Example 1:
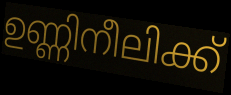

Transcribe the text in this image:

ഉണ്ണിനീലിക്ക്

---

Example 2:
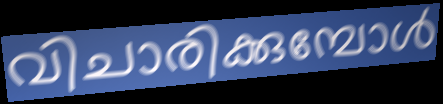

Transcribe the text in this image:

വിചാരിക്കുമ്പോൾ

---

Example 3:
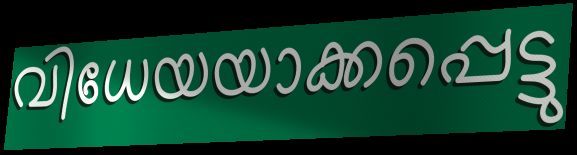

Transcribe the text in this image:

വിധേയയാക്കപ്പെട്ടു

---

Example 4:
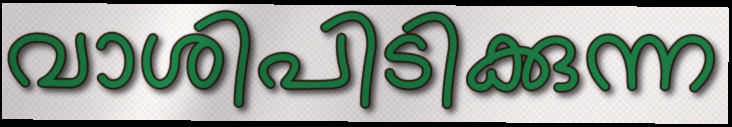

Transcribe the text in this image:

വാശിപിടിക്കുന്ന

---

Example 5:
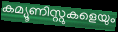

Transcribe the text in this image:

കമ്യൂണിസ്റ്റുകളെയും